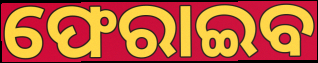
ଫେରାଇବ